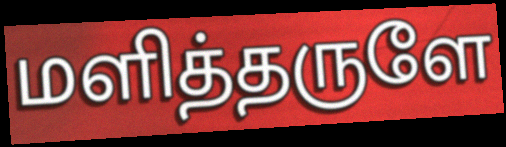
மளித்தருளே